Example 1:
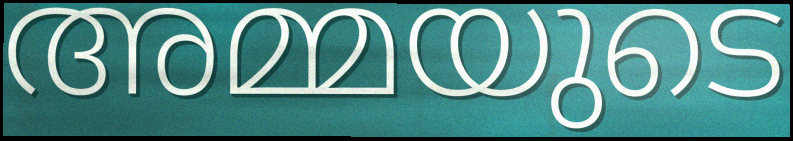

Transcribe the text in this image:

അമ്മയുടെ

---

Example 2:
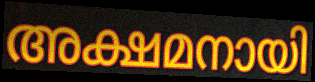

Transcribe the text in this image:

അക്ഷമനായി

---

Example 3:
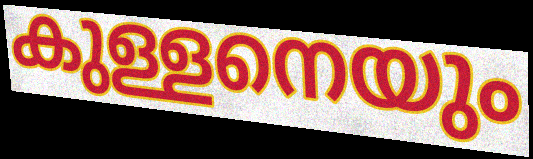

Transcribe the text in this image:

കുള്ളനെയും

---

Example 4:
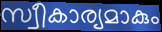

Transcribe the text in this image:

സ്വീകാര്യമാകും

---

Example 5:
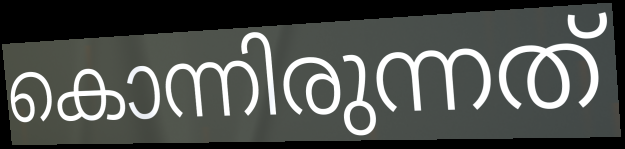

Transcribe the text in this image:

കൊന്നിരുന്നത്